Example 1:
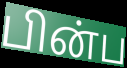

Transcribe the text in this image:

பின்ப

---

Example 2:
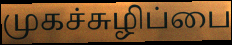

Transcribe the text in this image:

முகச்சுழிப்பை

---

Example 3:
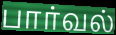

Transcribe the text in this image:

பார்வல்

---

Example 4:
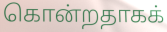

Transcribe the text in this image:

கொன்றதாகக்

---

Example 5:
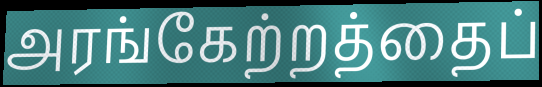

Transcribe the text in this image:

அரங்கேற்றத்தைப்